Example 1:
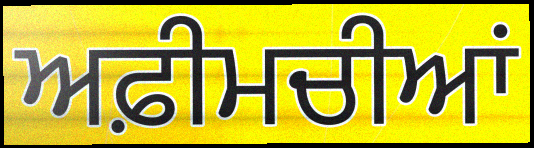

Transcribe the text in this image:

ਅਫ਼ੀਮਚੀਆਂ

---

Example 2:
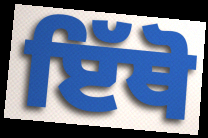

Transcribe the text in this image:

ਇੱਥੋ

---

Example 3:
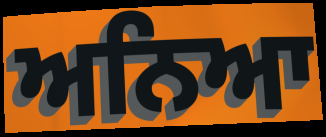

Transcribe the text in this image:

ਅਨਿਆ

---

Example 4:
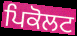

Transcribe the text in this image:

ਪਿਕੋਲਟ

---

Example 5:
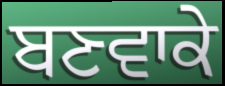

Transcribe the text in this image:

ਬਣਵਾਕੇ